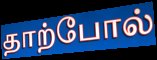
தாற்போல்